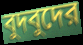
বুদবুদের